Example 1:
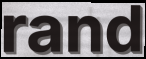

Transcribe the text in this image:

rand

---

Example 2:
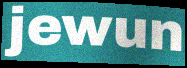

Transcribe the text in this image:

jewun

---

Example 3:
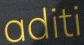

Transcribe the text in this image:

aditi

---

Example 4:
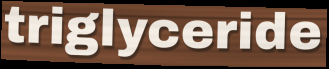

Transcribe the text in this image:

triglyceride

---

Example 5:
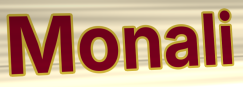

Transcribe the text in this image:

Monali